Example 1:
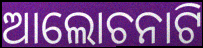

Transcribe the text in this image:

ଆଲୋଚନାଟି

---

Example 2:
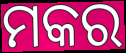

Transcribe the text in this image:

ମକର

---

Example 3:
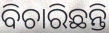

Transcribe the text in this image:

ବିଚାରିଛନ୍ତି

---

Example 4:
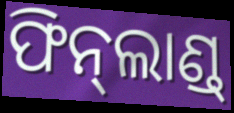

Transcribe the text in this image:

ଫିନ୍‌ଲାଣ୍ଡ୍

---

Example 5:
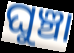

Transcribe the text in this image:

ଘୁଞ୍ଚା